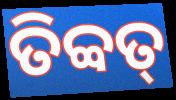
ତିବ୍ବତ୍